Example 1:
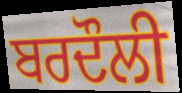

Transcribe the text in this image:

ਬਰਦੌਲੀ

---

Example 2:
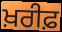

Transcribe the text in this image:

ਖ਼ਰੀਫ਼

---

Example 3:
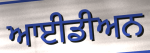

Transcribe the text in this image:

ਆਈਡੀਅਨ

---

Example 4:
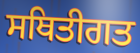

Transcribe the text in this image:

ਸਥਿਤੀਗਤ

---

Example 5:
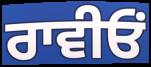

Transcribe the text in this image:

ਰਾਵੀਓਂ